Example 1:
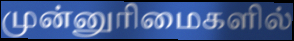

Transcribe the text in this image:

முன்னுரிமைகளில்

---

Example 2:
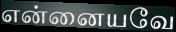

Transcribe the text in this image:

என்னையவே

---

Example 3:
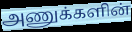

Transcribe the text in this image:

அணுக்களின்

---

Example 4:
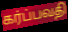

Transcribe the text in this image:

கர்ப்பவதி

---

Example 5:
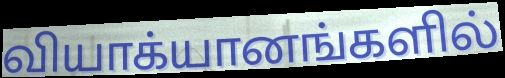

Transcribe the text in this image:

வியாக்யானங்களில்